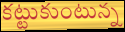
కట్టుకుంటున్న